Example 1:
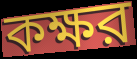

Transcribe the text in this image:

কক্ষর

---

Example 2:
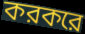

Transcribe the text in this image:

করকরে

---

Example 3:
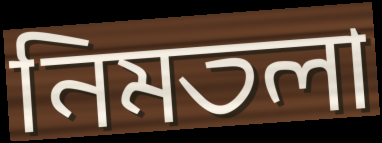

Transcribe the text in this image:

নিমতলা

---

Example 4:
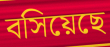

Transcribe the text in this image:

বসিয়েছে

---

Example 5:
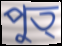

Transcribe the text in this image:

পুত্